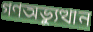
গণঅভ্যুত্থান